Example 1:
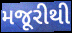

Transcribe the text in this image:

મજૂરીથી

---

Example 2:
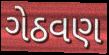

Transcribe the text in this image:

ગેઠવણ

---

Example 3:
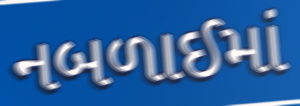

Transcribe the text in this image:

નબળાઈમાં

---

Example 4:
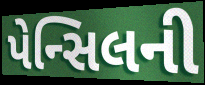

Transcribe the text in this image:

પેન્સિલની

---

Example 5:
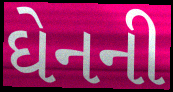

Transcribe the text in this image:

ઘેનની